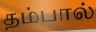
தம்பால்